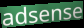
adsense